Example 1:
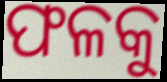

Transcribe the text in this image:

ଫଳକୁ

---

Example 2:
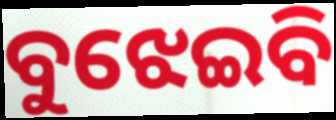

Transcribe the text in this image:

ବୁଝେଇବି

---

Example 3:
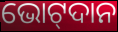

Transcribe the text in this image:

ଭୋଟ୍‌ଦାନ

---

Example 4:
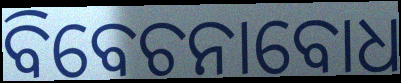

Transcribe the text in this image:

ବିବେଚନାବୋଧ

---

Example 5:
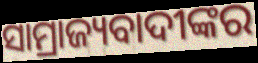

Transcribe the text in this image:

ସାମ୍ରାଜ୍ୟବାଦୀଙ୍କର